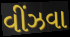
વીંઝવા